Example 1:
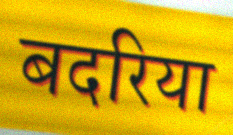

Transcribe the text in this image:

बदरिया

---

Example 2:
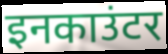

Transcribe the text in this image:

इनकाउंटर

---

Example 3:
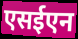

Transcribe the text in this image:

एसईएन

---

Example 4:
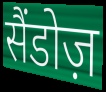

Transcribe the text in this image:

सैंडोज़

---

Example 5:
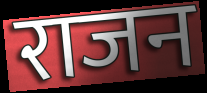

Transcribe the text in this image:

राजन